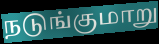
நடுங்குமாறு